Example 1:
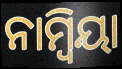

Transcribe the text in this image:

ନାମ୍ୱିୟା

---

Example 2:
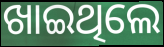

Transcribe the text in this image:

ଖାଇଥିଲେ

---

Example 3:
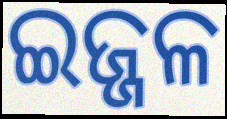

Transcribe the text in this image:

ଇଜ୍ଜଳ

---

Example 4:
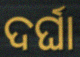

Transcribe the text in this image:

ଦର୍ଘା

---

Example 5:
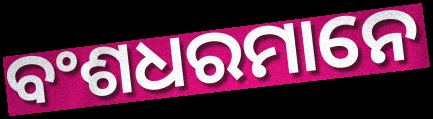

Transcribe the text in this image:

ବଂଶଧରମାନେ